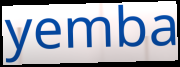
yemba